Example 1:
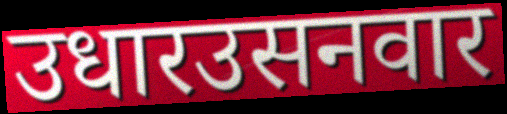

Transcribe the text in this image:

उधारउसनवार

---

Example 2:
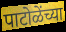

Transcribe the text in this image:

पाटोळेंच्या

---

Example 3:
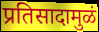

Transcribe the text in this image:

प्रतिसादामुळं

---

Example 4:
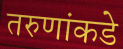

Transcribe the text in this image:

तरुणांकडे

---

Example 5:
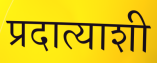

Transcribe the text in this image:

प्रदात्याशी